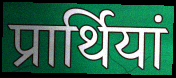
प्रार्थियां